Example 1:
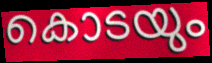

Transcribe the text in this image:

കൊടയും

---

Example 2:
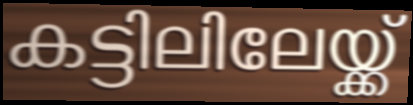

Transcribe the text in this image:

കട്ടിലിലേയ്ക്ക്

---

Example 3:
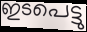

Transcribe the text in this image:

ഇടപെട്ടു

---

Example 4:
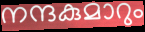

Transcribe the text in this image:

നന്ദകുമാറും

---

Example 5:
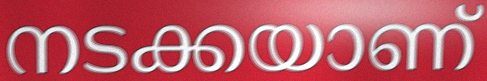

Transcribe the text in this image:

നടക്കയാണ്